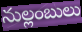
నుల్లంబులు